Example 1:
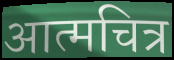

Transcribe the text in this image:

आत्मचित्र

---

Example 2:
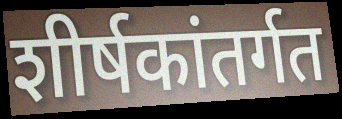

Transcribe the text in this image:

शीर्षकांतर्गत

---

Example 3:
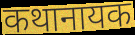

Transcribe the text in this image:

कथानायक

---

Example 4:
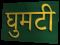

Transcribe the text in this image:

घुमटी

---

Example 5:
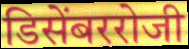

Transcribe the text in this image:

डिसेंबररोजी